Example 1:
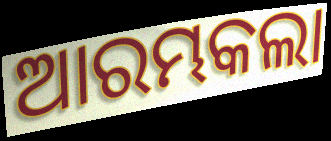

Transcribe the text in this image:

ଆରମ୍ଭକଲା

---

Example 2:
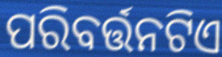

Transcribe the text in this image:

ପରିବର୍ତ୍ତନଟିଏ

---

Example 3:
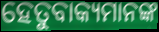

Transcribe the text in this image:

ହେତୁବାକ୍ୟମାନଙ୍କ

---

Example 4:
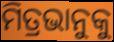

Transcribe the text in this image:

ମିତ୍ରଭାନୁକୁ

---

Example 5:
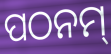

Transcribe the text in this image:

ପଠନମ୍